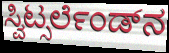
ಸ್ವಿಟ್ಸರ್ಲೆಂಡ್‌ನ